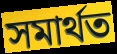
সমাৰ্থত